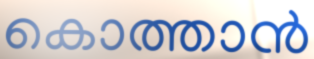
കൊത്താൻ